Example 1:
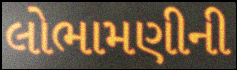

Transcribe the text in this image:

લોભામણીની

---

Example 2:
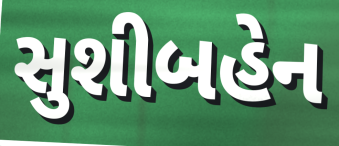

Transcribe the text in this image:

સુશીબહેન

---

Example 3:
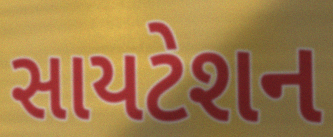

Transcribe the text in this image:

સાયટેશન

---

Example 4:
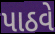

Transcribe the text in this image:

પાઠવે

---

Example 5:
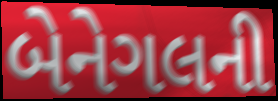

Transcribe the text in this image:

બેનેગલની